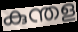
കുന്തള